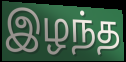
இழந்த